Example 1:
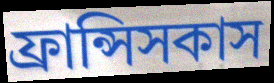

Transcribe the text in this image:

ফ্রান্সিসকাস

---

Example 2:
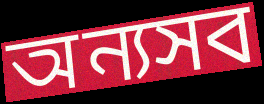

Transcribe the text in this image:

অন্যসব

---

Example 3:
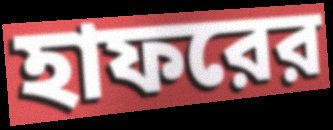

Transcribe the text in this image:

হাফরের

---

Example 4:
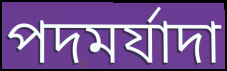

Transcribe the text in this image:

পদমর্যাদা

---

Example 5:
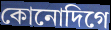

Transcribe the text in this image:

কোনোদিগে